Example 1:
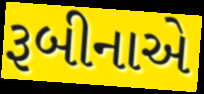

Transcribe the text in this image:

રૂબીનાએ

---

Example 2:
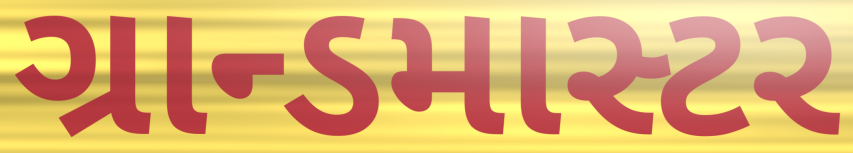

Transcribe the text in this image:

ગ્રાન્ડમાસ્ટર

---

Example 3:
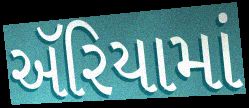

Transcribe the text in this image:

ઍરિયામાં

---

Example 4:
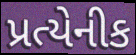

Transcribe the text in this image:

પ્રત્યેનીક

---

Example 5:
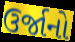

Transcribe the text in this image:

ઉર્જાનો